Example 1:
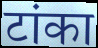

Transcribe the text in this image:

टांका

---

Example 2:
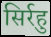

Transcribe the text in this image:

सिर्रहु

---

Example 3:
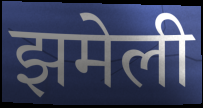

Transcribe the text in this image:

झमेली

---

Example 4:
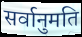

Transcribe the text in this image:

सर्वानुमति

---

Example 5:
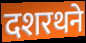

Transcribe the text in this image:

दशरथने